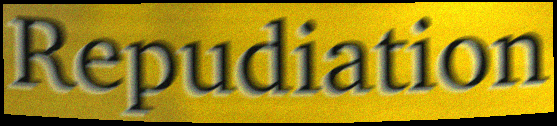
Repudiation